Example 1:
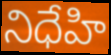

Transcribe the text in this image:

నిధేహి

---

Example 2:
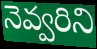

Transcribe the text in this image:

నెవ్వరిని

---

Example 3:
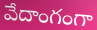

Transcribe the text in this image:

వేదాంగంగా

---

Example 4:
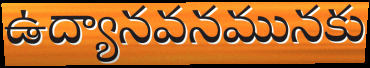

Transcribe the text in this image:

ఉద్యానవనమునకు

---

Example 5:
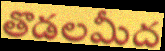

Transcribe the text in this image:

తొడలమీద